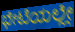
ಭೇಟಿಯಲ್ಲೇ